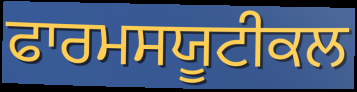
ਫਾਰਮਸਯੂਟੀਕਲ